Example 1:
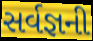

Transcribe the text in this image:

સર્વજ્ઞની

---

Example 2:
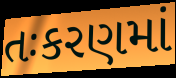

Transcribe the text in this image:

તઃકરણમાં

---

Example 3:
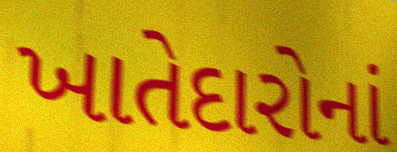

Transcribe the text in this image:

ખાતેદારોનાં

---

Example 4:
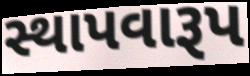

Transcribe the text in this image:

સ્થાપવારૂપ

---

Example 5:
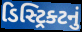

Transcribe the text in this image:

ડિસ્ટ્રિક્ટનું